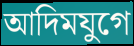
আদিমযুগে